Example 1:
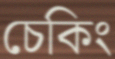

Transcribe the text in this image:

চেকিং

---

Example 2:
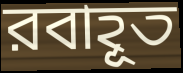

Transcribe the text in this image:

রবাহূত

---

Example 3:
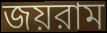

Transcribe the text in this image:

জয়রাম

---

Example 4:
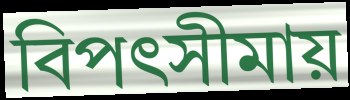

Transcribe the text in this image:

বিপৎসীমায়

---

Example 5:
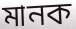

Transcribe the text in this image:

মানক